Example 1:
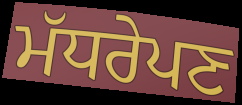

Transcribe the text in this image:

ਮੱਧਰੇਪਣ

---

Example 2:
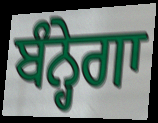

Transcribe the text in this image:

ਬੰਨ੍ਹੇਗਾ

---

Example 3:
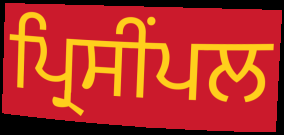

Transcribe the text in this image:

ਪ੍ਰਿਸੀਂਪਲ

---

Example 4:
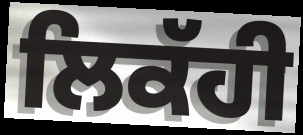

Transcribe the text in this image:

ਲਿਕੱਹੀ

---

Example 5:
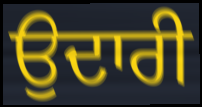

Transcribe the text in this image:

ਉਦਾਰੀ